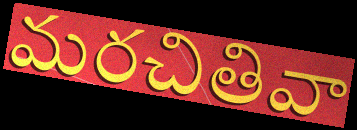
మరచితివా